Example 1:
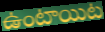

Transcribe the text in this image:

ఉంటాయిట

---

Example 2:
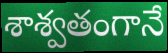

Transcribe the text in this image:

శాశ్వతంగానే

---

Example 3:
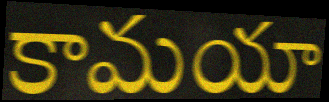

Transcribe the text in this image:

కామయా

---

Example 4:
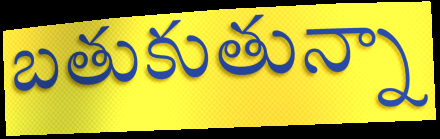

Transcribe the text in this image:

బతుకుతున్నా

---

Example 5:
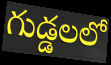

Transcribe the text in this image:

గుడ్డలలో